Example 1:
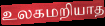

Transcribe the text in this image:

உலகமறியாத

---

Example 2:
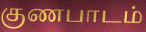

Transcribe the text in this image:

குணபாடம்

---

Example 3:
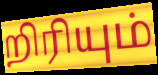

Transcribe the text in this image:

றிரியும்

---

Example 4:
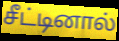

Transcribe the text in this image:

சீட்டினால்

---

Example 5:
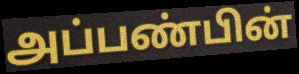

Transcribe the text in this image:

அப்பண்பின்